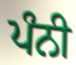
ਪੰਨੀ